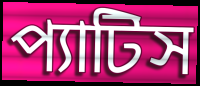
প্যাটিস